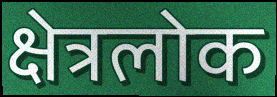
क्षेत्रलोक